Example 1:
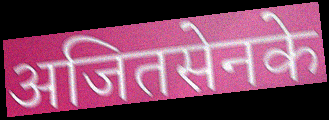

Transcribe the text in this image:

अजितसेनके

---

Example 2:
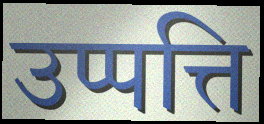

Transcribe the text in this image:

उप्पत्ति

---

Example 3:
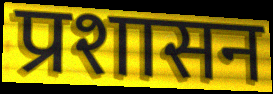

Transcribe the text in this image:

प्रशासन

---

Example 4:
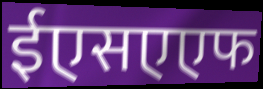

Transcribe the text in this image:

ईएसएएफ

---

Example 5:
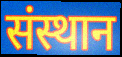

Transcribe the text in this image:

संस्थान